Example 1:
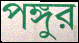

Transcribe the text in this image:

পঙ্গুর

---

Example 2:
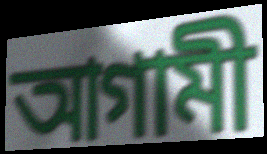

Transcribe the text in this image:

আগামী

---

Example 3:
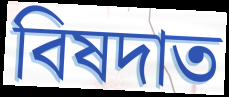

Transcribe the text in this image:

বিষদাত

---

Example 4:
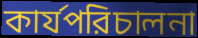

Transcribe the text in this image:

কার্যপরিচালনা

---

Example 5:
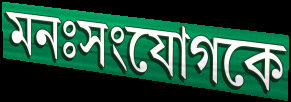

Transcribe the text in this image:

মনঃসংযোগকে